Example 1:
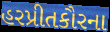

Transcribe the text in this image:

હરપ્રીતકૌરના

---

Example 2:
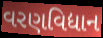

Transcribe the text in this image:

વરણવિદ્યાન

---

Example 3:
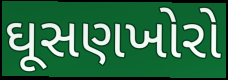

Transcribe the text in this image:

ઘૂસણખોરો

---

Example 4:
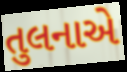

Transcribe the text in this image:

તુલનાએ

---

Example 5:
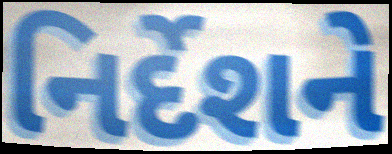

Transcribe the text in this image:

નિર્દેશને